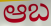
ఆబ